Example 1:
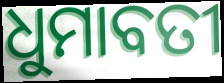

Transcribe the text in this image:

ଧୁମାବତୀ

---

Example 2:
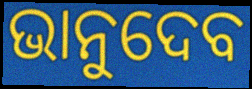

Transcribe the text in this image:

ଭାନୁଦେବ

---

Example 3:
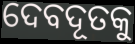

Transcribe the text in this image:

ଦେବଦୂତକୁ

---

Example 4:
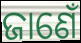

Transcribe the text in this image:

ଜାଣେଁ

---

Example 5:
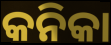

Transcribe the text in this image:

କନିକା